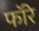
फॉरे